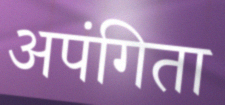
अपंगिता